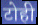
टोही